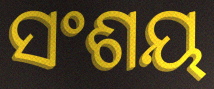
ସଂଶୟ